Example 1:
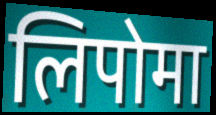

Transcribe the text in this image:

लिपोमा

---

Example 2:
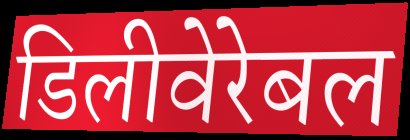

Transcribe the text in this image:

डिलीवेरेबल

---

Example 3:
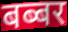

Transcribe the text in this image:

बब्बर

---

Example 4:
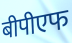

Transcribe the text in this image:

बीपीएफ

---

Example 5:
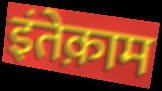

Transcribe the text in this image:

इंतेक़ाम